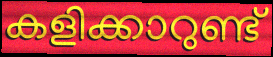
കളിക്കാറുണ്ട്